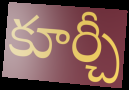
కూర్చీ